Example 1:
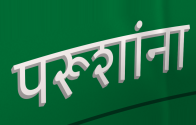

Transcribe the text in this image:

परूशांना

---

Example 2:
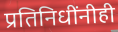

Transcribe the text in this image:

प्रतिनिधींनीही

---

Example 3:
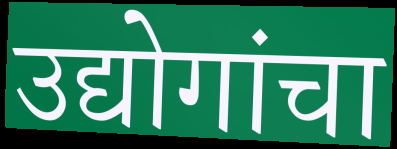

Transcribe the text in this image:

उद्योगांचा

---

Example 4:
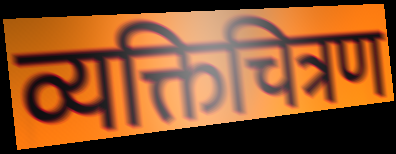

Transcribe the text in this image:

व्यक्तिचित्रण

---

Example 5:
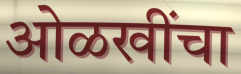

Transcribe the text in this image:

ओळखींचा